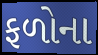
ફળોના